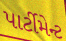
પાર્ટીમેન્ટ